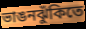
ভাঙনঝুঁকিতে